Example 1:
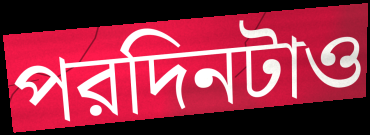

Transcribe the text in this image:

পরদিনটাও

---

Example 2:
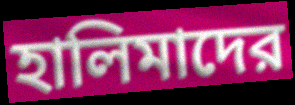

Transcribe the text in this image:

হালিমাদের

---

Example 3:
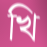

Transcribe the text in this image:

খি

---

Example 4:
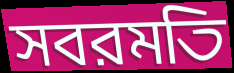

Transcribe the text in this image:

সবরমতি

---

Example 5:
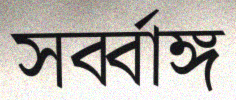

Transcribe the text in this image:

সর্ব্বাঙ্গ